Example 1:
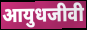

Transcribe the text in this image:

आयुधजीवी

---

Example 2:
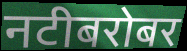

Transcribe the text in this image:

नटीबरोबर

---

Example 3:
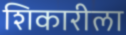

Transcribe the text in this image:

शिकारीला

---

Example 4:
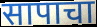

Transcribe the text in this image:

सापाचा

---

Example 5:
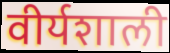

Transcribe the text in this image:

वीर्यशाली